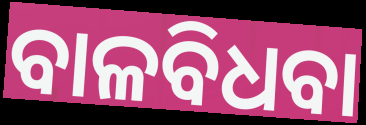
ବାଳବିଧବା